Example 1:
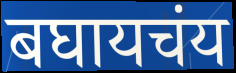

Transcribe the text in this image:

बघायचंय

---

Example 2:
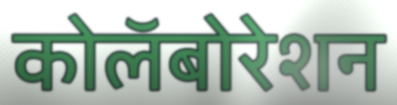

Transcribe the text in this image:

कोलॅबोरेशन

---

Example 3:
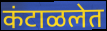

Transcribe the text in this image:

कंटाळलेत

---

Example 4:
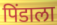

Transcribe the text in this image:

पिंडाला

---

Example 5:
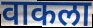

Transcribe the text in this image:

वाकला